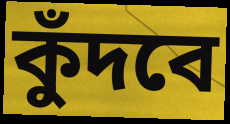
কুঁদবে